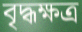
বৃদ্ধক্ষত্র